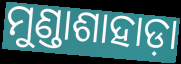
ମୁଣ୍ଡାଶାହାଡ଼ା